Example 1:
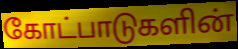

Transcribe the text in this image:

கோட்பாடுகளின்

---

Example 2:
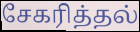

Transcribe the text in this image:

சேகரித்தல்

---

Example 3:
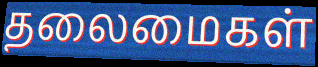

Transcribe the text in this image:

தலைமைகள்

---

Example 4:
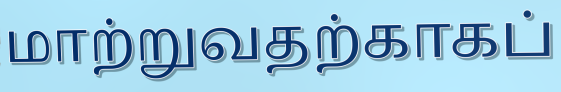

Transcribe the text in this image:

மாற்றுவதற்காகப்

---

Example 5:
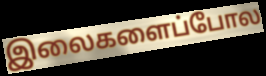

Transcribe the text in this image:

இலைகளைப்போல